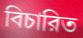
বিচারিত